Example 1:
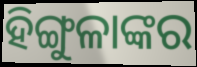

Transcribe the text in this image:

ହିଙ୍ଗୁଳାଙ୍କର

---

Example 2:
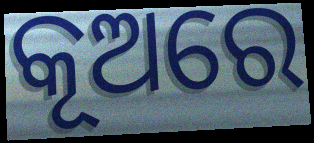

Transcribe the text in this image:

କୂଅରେ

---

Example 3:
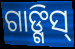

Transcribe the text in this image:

ଗାଙ୍ଗିସ୍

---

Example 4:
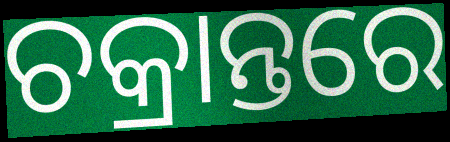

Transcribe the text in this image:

ଚକ୍ରାନ୍ତରେ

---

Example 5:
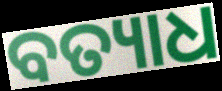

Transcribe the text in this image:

ବତ୍ୟାଧ